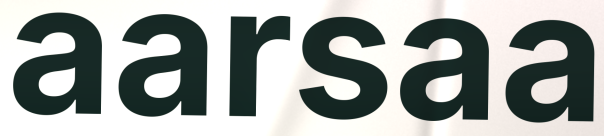
aarsaa